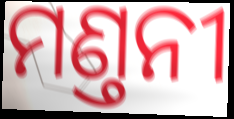
ମଣ୍ତନୀ